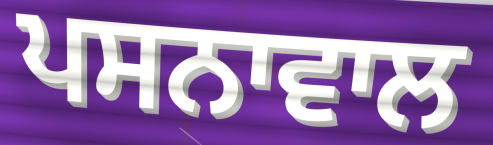
ਪਸਨਾਵਾਲ